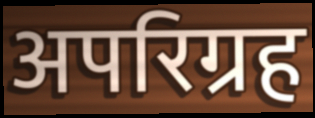
अपरिग्रह